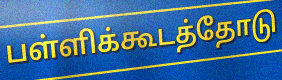
பள்ளிக்கூடத்தோடு